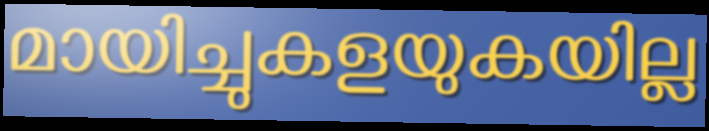
മായിച്ചുകളയുകയില്ല